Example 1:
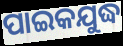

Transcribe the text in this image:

ପାଇକଯୁଦ୍ଧ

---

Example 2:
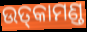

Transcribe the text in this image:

ଉତ୍‌କାମଣ୍ଡ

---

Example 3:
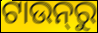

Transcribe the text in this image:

ଟାଉନ୍‌ରୁ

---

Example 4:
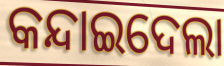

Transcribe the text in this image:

କନ୍ଦାଇଦେଲା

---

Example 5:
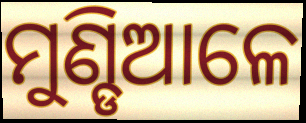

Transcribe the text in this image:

ମୁଣ୍ଡିଆଳେ